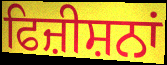
ਫਿਜ਼ੀਸ਼ਨਾਂ